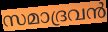
സമാദ്രവൻ